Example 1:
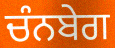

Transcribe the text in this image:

ਚੰਨਬੇਗ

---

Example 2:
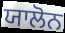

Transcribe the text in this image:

ਯਾਲੋਨ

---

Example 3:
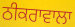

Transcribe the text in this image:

ਠੀਕਰਾਵਾਲਾ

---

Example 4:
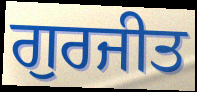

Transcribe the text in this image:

ਗੁਰਜੀਤ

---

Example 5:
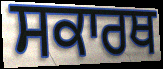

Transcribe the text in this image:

ਸਕਾਰਥ